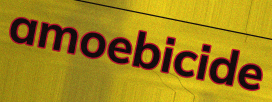
amoebicide